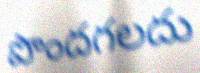
పొందగలదు